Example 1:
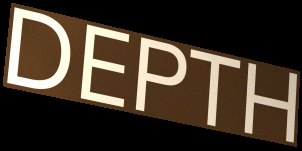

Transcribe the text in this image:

DEPTH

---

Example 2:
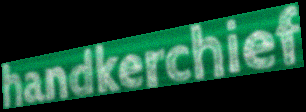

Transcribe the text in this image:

handkerchief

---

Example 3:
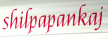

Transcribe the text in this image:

shilpapankaj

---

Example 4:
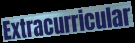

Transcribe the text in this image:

Extracurricular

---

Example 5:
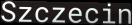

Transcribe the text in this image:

Szczecin